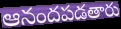
ఆనందపడతారు